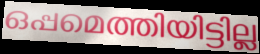
ഒപ്പമെത്തിയിട്ടില്ല